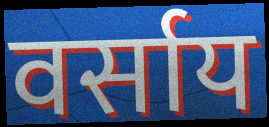
वर्साय